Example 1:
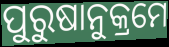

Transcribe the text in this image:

ପୁରୁଷାନୁକ୍ରମେ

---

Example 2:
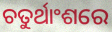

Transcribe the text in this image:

ଚତୁର୍ଥାଂଶରେ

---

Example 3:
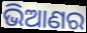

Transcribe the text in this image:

ଭିଆଣର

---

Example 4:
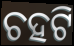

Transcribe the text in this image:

ଚହଟି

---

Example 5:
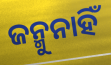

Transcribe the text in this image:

ଜନ୍ମୁନାହିଁ